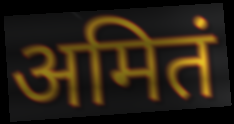
अमितं